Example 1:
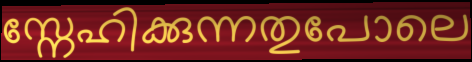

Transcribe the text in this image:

സ്നേഹിക്കുന്നതുപോലെ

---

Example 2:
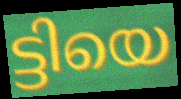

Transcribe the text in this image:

ട്ടിയെ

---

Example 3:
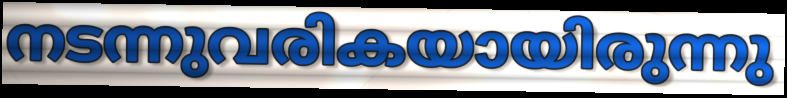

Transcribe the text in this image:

നടന്നുവരികയായിരുന്നു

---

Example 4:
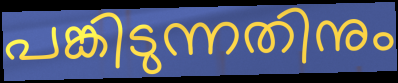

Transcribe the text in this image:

പങ്കിടുന്നതിനും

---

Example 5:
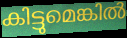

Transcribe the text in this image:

കിട്ടുമെങ്കിൽ